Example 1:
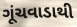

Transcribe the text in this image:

ગૂંચવાડાથી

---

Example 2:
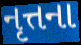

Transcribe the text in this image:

નૃત્તના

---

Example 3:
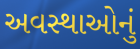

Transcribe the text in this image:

અવસ્થાઓનું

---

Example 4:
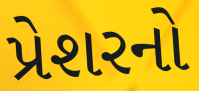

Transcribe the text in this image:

પ્રેશરનો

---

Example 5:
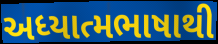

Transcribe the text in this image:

અધ્યાત્મભાષાથી